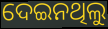
ଦେଇନଥିଲୁ